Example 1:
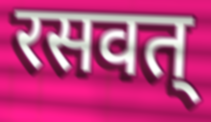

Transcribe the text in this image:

रसवत्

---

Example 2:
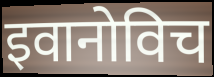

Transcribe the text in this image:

इवानोविच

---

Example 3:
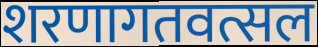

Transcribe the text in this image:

शरणागतवत्सल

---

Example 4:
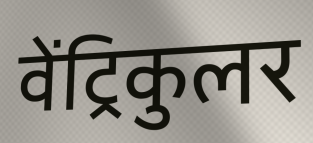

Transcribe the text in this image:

वेंट्रिकुलर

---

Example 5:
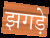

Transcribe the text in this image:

झगड़े